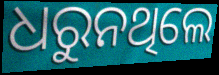
ଧରୁନଥିଲେ